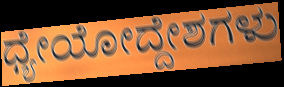
ಧ್ಯೇಯೋದ್ದೇಶಗಳು